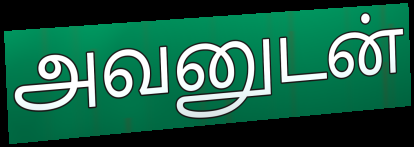
அவனுடன்